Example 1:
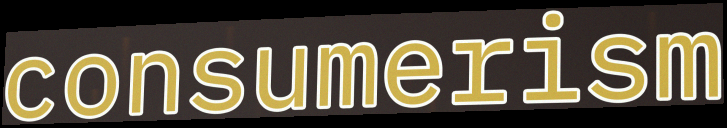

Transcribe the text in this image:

consumerism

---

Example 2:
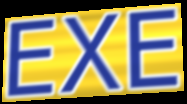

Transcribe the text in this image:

EXE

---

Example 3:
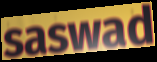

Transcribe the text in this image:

saswad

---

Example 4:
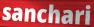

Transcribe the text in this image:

sanchari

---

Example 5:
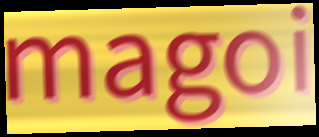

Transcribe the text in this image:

magoi